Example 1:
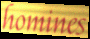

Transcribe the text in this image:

homines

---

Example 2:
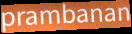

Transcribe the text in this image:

prambanan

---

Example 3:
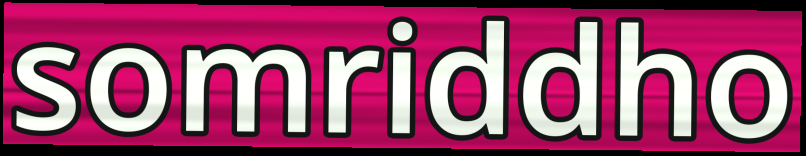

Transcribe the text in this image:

somriddho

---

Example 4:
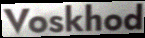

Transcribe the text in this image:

Voskhod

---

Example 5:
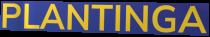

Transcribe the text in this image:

PLANTINGA